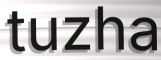
tuzha